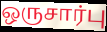
ஒருசார்பு